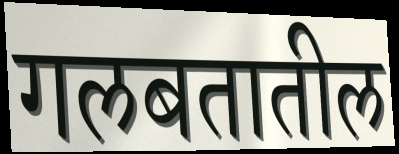
गलबतातील